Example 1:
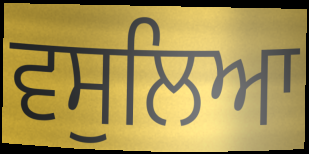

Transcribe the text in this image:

ਵਸੁਲਿਆ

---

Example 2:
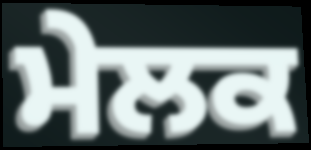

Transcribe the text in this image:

ਮੇਲਕ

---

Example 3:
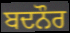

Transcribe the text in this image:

ਬਦਨੌਰ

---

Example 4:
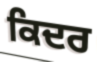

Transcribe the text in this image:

ਕਿਦਰ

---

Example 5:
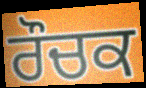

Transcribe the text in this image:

ਰੌਚਕ